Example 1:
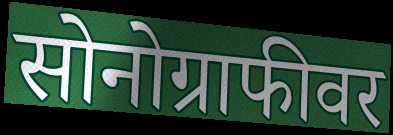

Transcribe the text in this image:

सोनोग्राफीवर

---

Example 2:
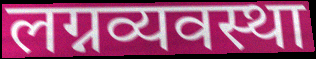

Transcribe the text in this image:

लग्नव्यवस्था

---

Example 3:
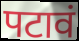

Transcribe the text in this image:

पटावं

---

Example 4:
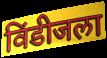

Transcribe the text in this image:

विंडीजला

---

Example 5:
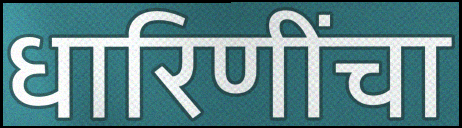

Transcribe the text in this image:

धारिणींचा